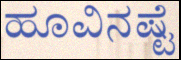
ಹೂವಿನಷ್ಟೆ